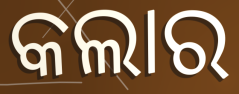
କଲାର